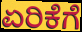
ಏರಿಕೆಗೆ